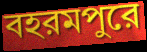
বহরমপুরে